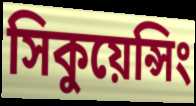
সিকুয়েন্সিং